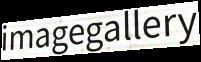
imagegallery